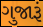
ગુજારૂં